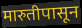
मारुतीपासून